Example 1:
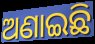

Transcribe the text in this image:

ଅଣାଇଛି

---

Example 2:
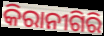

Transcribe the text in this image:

କିରାନୀଗିରି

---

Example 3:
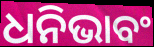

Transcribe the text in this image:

ଧନିଭାବଂ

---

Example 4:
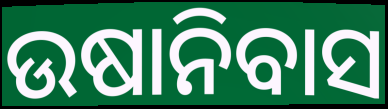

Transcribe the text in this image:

ଉଷାନିବାସ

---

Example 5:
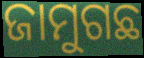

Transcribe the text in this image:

ଜାମୁଗଛ